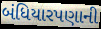
બંધિયારપણાની